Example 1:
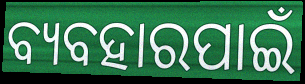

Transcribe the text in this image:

ବ୍ୟବହାରପାଇଁ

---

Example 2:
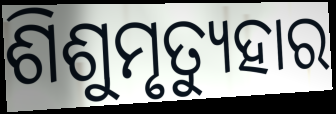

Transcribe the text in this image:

ଶିଶୁମୃତ୍ୟୁହାର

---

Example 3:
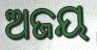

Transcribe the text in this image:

ଅଜୟ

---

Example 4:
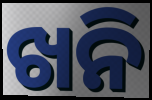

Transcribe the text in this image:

ଖନି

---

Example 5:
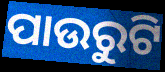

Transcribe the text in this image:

ପାଉରୁଟି